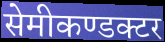
सेमीकण्डक्टर